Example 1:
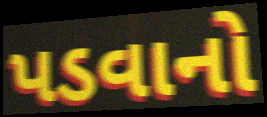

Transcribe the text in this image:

પડવાનો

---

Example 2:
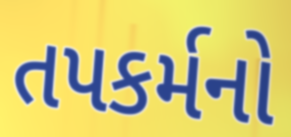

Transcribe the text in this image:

તપકર્મનો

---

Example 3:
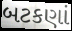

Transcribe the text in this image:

બટકણાં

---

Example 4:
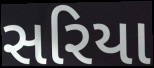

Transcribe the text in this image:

સરિયા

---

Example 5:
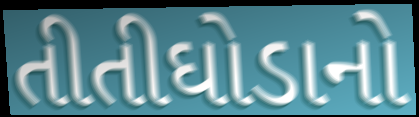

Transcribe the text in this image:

તીતીઘોડાનો